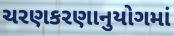
ચરણકરણાનુયોગમાં